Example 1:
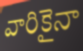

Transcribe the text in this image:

వారికైనా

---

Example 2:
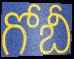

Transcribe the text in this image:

గోబీ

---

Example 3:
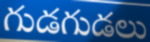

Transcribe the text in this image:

గుడగుడలు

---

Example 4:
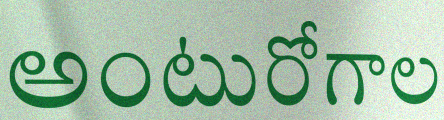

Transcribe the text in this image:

అంటురోగాల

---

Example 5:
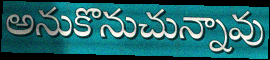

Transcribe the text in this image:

అనుకొనుచున్నావు